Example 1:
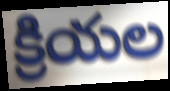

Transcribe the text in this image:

క్రియల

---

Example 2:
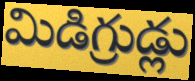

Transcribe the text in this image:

మిడిగ్రుడ్లు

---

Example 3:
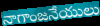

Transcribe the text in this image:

నాగాంజనేయులు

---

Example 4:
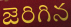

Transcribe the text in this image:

జెరిగిన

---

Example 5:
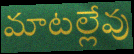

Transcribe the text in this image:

మాటల్లేవు